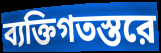
ব্যক্তিগতস্তরে